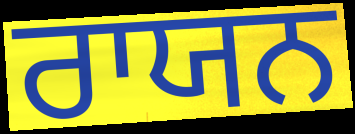
ਰਾਯਨ